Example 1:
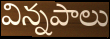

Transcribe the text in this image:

విన్నపాలు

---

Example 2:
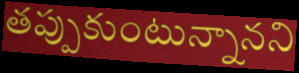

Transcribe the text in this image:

తప్పుకుంటున్నానని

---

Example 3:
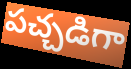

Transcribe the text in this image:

పచ్చడిగా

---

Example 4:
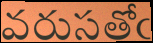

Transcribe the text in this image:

వరుసతోఁ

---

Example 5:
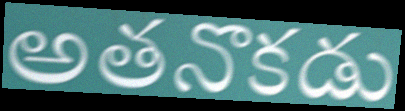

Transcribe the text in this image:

అతనొకడు